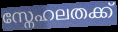
സ്നേഹലതക്ക്